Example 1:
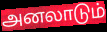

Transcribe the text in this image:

அனலாடும்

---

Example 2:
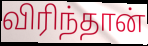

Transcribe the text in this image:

விரிந்தான்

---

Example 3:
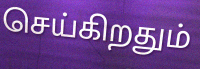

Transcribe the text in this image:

செய்கிறதும்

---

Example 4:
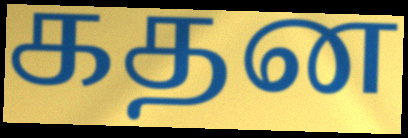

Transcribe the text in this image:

கதன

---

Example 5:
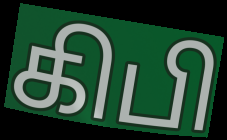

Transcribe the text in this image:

கிபி